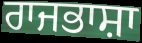
ਰਾਜਭਾਸ਼ਾ